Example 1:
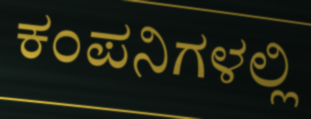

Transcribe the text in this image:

ಕಂಪನಿಗಳಲ್ಲಿ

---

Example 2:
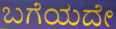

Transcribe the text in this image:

ಬಗೆಯದೇ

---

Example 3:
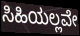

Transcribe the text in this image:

ಸಿಹಿಯಲ್ಲವೇ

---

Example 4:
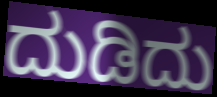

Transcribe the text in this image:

ದುಡಿದು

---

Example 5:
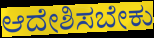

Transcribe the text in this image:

ಆದೇಶಿಸಬೇಕು